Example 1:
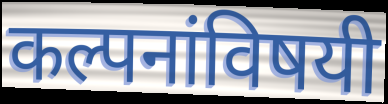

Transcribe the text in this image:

कल्पनांविषयी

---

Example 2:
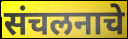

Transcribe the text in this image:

संचलनाचे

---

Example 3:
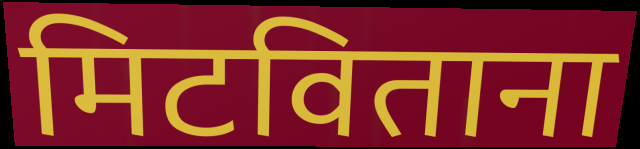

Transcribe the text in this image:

मिटविताना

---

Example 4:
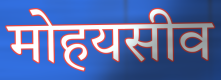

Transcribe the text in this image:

मोहयसीव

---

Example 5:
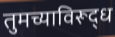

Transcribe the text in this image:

तुमच्याविरूद्ध